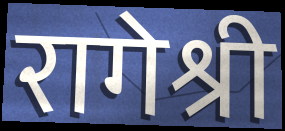
रागेश्री